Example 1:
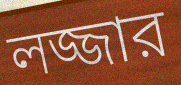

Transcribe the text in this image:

লজ্জার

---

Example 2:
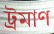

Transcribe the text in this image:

ট্রমাণ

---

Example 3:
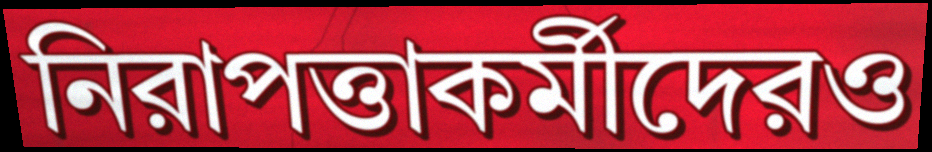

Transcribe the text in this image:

নিরাপত্তাকর্মীদেরও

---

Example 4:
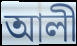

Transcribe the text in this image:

আলী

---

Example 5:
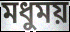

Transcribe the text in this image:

মধুময়